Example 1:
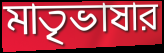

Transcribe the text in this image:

মাতৃভাষার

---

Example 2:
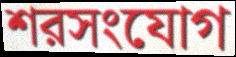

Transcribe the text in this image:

শরসংযোগ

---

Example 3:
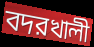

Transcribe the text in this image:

বদরখালী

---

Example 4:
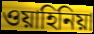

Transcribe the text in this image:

ওয়াহিনিয়া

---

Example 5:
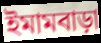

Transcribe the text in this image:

ইমামবাড়া